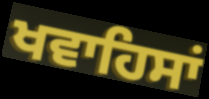
ਖਵਾਹਿਸਾਂ